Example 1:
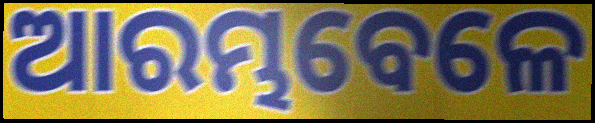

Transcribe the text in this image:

ଆରମ୍ଭବେଳେ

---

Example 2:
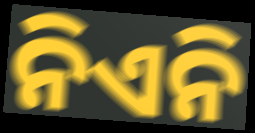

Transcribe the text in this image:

ନିଏନି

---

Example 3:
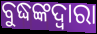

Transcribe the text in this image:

ବୁଦ୍ଧଙ୍କଦ୍ଵାରା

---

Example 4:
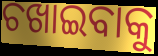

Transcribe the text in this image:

ଚଖାଇବାକୁ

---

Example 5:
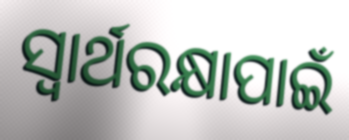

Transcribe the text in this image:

ସ୍ବାର୍ଥରକ୍ଷାପାଇଁ